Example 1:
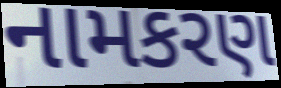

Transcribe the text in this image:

નામકરણ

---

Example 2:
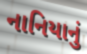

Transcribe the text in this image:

નાનિયાનું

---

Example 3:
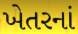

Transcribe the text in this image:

ખેતરનાં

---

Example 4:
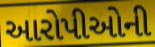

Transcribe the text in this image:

આરોપીઓની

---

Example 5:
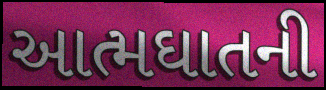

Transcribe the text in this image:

આત્મઘાતની